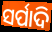
ସର୍ପାଦି